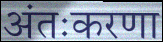
अंतःकरणा